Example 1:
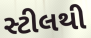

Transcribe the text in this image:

સ્ટીલથી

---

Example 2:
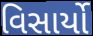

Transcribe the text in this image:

વિસાર્યો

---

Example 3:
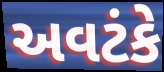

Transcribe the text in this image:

અવટંકે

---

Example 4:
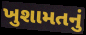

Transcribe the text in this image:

ખુશામતનું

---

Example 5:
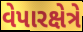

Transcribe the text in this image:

વેપારક્ષેત્રે